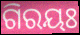
ଗିରୟଃ